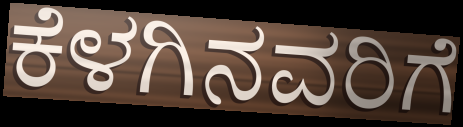
ಕೆಳಗಿನವರಿಗೆ